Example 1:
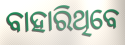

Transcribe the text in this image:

ବାହାରିଥିବେ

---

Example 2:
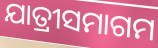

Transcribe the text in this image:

ଯାତ୍ରୀସମାଗମ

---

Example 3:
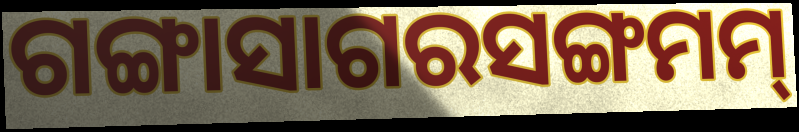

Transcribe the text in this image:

ଗଙ୍ଗାସାଗରସଙ୍ଗମମ୍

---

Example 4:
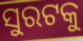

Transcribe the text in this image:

ସୁରଟକୁ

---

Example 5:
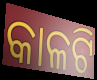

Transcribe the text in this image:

କାଳଟି